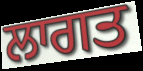
ਲਾਗਤ